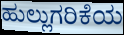
ಹುಲ್ಲುಗರಿಕೆಯ